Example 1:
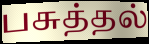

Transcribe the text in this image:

பசுத்தல்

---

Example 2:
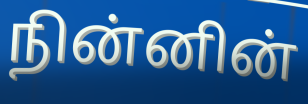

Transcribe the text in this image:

நின்னின்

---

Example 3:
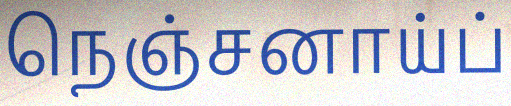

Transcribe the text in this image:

நெஞ்சனாய்ப்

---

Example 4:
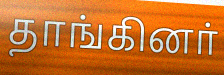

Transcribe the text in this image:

தாங்கினர்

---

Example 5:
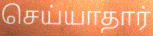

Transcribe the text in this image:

செய்யாதார்